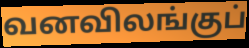
வனவிலங்குப்